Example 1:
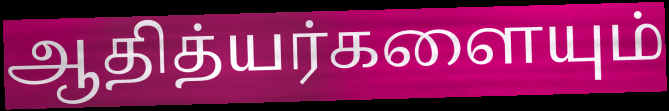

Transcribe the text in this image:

ஆதித்யர்களையும்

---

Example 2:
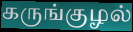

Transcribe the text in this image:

கருங்குழல்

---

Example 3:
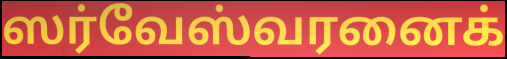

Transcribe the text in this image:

ஸர்வேஸ்வரனைக்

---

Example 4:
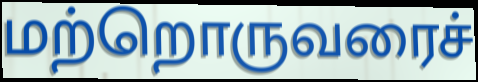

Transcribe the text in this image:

மற்றொருவரைச்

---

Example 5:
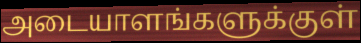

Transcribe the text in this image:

அடையாளங்களுக்குள்